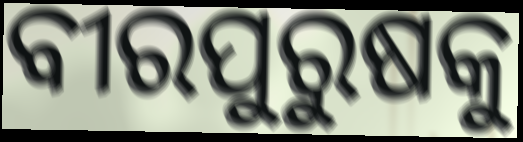
ବୀରପୁରୁଷକୁ